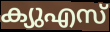
ക്യുഎസ്